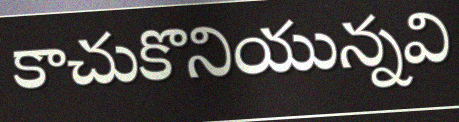
కాచుకొనియున్నవి